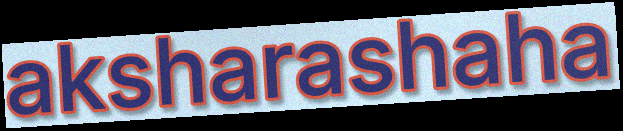
aksharashaha